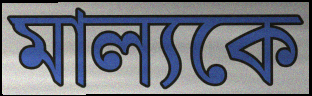
মাল্যকে